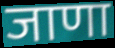
जाणा